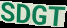
SDGT